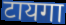
टायगा